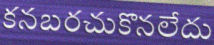
కనబరచుకొనలేదు